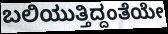
ಬಲಿಯುತ್ತಿದ್ದಂತೆಯೇ